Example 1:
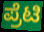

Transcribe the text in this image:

ಪ್ರೆಟಿ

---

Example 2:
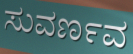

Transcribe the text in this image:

ಸುವರ್ಣವ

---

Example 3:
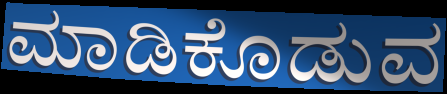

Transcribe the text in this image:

ಮಾಡಿಕೊಡುವ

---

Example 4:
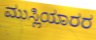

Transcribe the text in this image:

ಮುಸ್ಲಿಯಾರರ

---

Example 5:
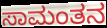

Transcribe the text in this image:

ಸಾಮಂತನ